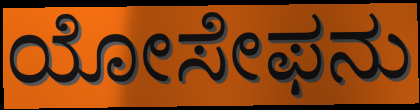
ಯೋಸೇಫನು